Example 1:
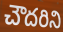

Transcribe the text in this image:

చౌదరిని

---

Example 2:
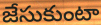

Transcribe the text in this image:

జేసుకుంటా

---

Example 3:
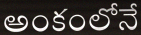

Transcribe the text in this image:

అంకంలోనే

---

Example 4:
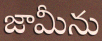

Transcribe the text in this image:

జామీను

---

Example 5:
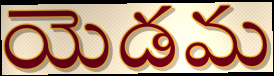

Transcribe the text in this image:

యెడమ